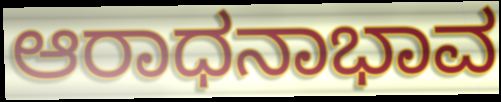
ಆರಾಧನಾಭಾವ